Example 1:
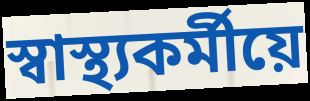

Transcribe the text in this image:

স্বাস্থ্যকৰ্মীয়ে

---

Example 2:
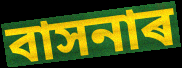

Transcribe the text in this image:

বাসনাৰ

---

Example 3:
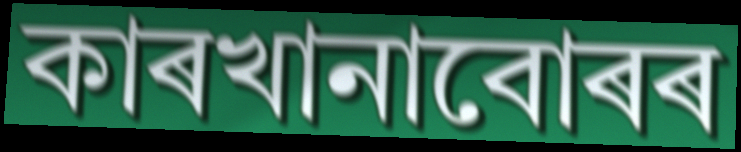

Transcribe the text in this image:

কাৰখানাবোৰৰ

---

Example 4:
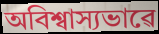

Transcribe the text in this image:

অবিশ্বাস্যভাৱে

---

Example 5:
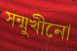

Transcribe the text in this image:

সন্মুখীনো